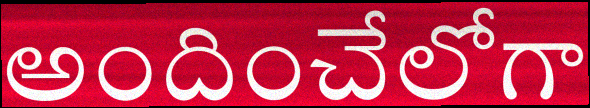
అందించేలోగా